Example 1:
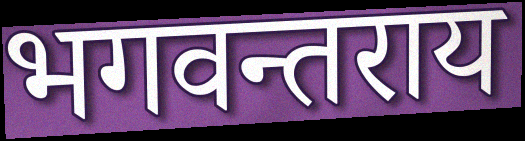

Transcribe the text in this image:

भगवन्तराय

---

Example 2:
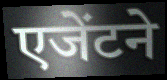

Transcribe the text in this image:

एजेंटने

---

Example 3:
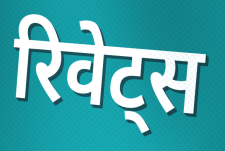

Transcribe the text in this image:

रिवेट्स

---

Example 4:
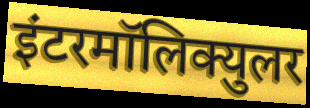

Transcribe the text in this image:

इंटरमॉलिक्युलर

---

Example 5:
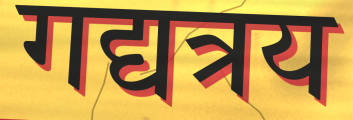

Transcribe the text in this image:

गद्यत्रय